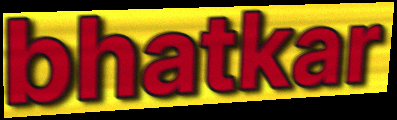
bhatkar